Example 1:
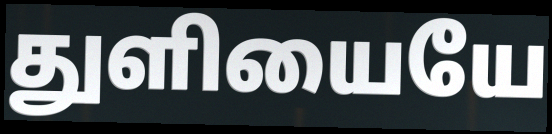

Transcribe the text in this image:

துளியையே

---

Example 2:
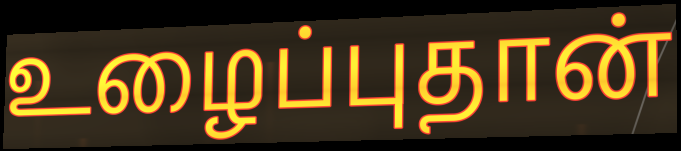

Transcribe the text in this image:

உழைப்புதான்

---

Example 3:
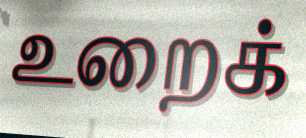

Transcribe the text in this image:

உறைக்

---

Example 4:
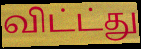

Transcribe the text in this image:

விட்ட்து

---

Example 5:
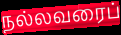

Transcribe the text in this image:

நல்லவரைப்